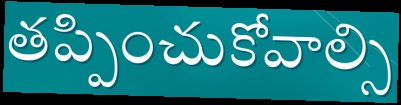
తప్పించుకోవాల్సి